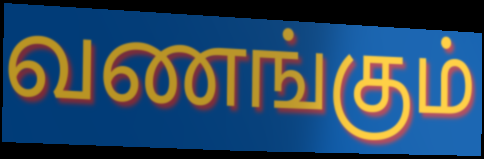
வணங்கும்